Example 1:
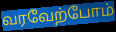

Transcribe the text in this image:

வரவேற்போம்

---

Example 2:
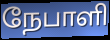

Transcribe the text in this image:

நேபாளி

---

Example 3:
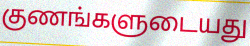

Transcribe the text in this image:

குணங்களுடையது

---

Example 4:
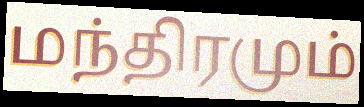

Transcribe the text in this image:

மந்திரமும்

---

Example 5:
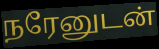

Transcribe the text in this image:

நரேனுடன்